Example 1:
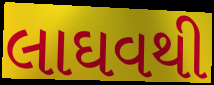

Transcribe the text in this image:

લાઘવથી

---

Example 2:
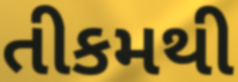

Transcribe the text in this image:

તીકમથી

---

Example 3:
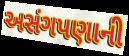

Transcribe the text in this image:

અસંગપણાની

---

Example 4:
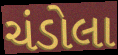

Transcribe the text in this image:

ચંડોલા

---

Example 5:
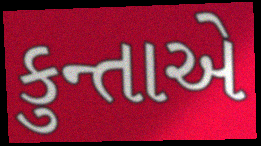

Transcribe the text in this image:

કુન્તાએ